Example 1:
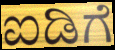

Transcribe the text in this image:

ಐಡಿಗೆ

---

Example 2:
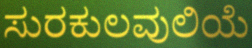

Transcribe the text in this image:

ಸುರಕುಲವುಲಿಯೆ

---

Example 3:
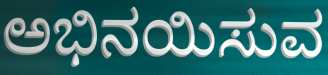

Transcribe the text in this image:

ಅಭಿನಯಿಸುವ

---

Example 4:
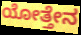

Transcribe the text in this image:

ಯೋತ್ತೇನ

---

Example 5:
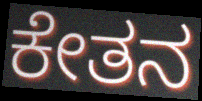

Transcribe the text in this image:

ಕೇತನ